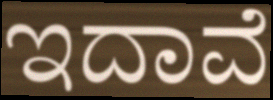
ಇದಾವೆ